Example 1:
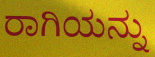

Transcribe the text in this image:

ರಾಗಿಯನ್ನು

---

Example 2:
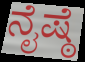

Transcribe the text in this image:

ನೈಷ್ಠೆ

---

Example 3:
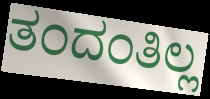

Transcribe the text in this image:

ತಂದಂತಿಲ್ಲ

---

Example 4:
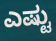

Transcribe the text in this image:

ಎಷ್ಟು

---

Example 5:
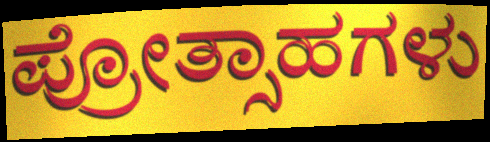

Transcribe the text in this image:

ಪ್ರೋತ್ಸಾಹಗಳು